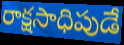
రాక్షసాధిపుడే